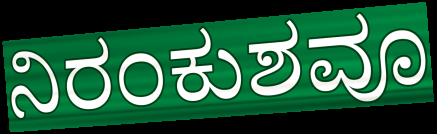
ನಿರಂಕುಶವೂ